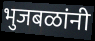
भुजबळांनी